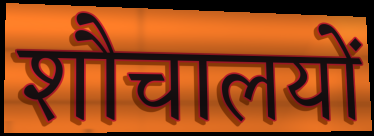
शौचालयों